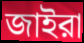
জাইরা